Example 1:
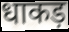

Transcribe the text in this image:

धाकड़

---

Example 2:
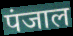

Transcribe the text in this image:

पंजाल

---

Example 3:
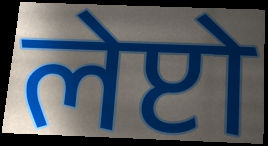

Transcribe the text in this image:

लेप्टो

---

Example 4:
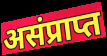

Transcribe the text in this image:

असंप्राप्त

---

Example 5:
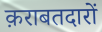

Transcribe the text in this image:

क़राबतदारों